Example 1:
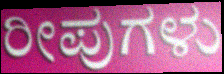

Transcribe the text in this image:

ರೀಪುಗಳು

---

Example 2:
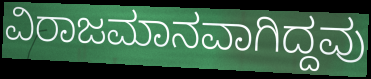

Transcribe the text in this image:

ವಿರಾಜಮಾನವಾಗಿದ್ದವು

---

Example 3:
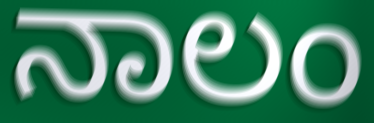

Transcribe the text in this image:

ನಾಲಂ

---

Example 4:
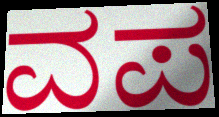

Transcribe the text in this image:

ವಪ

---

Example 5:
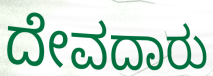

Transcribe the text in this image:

ದೇವದಾರು